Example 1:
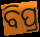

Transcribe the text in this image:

ବିପ୍ର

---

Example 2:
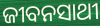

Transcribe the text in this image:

ଜୀବନସାଥୀ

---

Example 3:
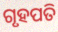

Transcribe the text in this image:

ଗୃହପତି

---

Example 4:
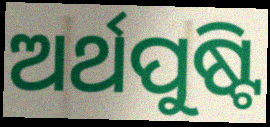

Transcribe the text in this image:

ଅର୍ଥପୁଷ୍ଟି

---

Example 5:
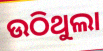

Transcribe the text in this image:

ଉଠିଥୁଲା